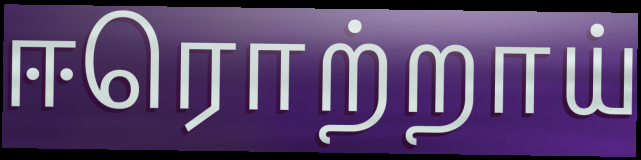
ஈரொற்றாய்